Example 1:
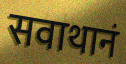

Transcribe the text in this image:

सवाथानं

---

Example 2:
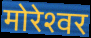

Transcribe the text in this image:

मोरेश्वर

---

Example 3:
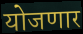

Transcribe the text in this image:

योजणार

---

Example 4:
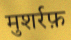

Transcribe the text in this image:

मुशर्रफ़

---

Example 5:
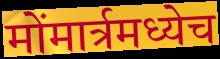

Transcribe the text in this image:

मोंमार्त्रमध्येच